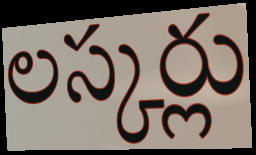
లస్కర్లు